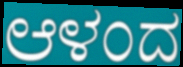
ಆಳಂದ